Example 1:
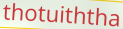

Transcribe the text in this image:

thotuiththa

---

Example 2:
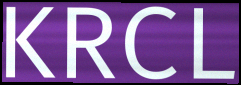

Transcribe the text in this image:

KRCL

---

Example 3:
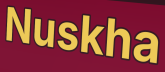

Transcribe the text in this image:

Nuskha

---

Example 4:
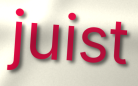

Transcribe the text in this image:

juist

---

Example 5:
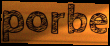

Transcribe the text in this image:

porbe